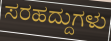
ಸರಹದ್ದುಗಳು